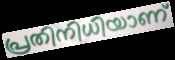
പ്രതിനിധിയാണ്